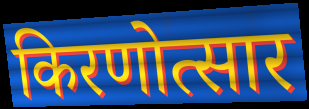
किरणोत्सार